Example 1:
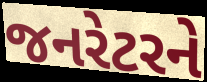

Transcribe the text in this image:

જનરેટરને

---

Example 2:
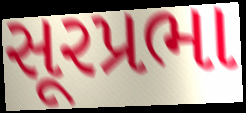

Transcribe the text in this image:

સૂરપ્રભા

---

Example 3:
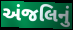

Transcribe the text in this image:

અંજલિનું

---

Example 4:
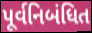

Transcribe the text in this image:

પૂર્વનિબંધિત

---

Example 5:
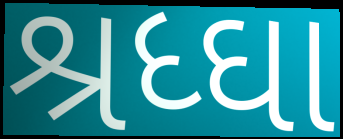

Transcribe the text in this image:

શ્રધ્ઘા